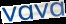
vava